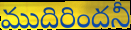
ముదిరిందనీ